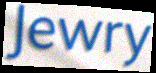
Jewry